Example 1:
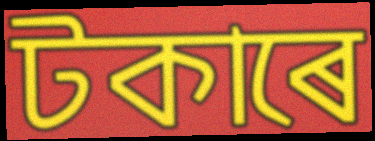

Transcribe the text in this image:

টকাৰে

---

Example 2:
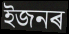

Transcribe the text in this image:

ইজনৰ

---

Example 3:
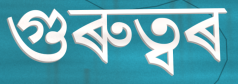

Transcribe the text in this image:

গুৰুত্বৰ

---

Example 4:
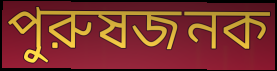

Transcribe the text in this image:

পুৰুষজনক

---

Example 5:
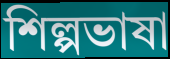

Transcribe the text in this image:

শিল্পভাষা